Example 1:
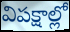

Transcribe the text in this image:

విపక్షాల్లో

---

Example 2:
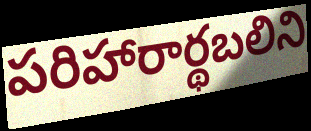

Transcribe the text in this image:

పరిహారార్థబలిని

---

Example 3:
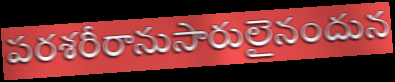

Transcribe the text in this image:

పరశరీరానుసారులైనందున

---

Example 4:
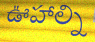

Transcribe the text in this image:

ఊహాల్ని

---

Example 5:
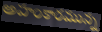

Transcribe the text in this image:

అహంకారమున్న